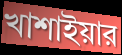
খাশাইয়ার